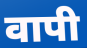
वापी